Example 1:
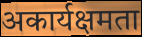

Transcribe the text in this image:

अकार्यक्षमता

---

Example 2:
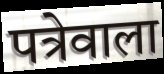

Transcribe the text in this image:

पत्रेवाला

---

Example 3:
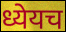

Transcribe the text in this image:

ध्येयच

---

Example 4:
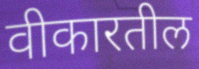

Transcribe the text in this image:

वीकारतील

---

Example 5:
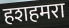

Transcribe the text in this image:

हशहमरा